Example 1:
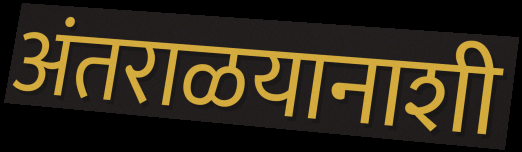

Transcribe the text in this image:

अंतराळयानाशी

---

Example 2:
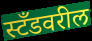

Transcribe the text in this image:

स्टँडवरील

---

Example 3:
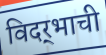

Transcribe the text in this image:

विदर्भाची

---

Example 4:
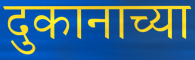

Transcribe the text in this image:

दुकानाच्या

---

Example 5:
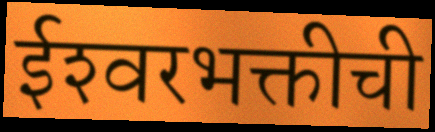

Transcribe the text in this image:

ईश्वरभक्तीची